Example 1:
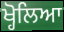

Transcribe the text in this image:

ਖ੍ਹੋਲਿਆ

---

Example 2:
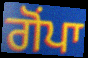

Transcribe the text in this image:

ਗੋਂਪਾ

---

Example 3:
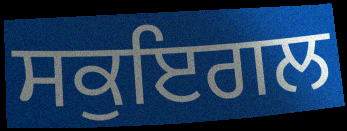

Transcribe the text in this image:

ਸਕੁਇਗਲ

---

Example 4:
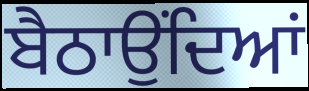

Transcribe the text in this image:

ਬੈਠਾਉਂਦਿਆਂ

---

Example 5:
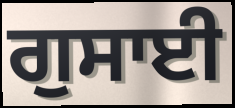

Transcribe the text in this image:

ਗੁਸਾਈ